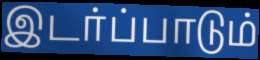
இடர்ப்பாடும்